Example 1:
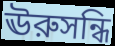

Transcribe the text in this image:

ঊরুসন্ধি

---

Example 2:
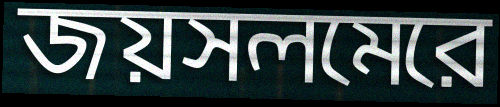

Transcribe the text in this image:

জয়সলমেরে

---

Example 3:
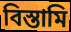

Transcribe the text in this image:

বিস্তামি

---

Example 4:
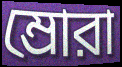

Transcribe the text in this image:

ম্রোরা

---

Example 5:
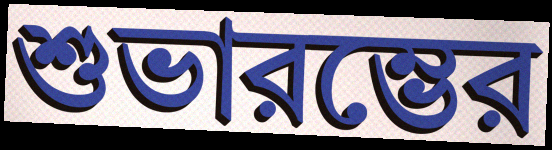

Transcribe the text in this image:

শুভারম্ভের